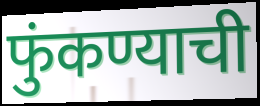
फुंकण्याची